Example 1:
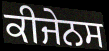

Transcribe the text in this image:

ਕੀਜੇਨਸ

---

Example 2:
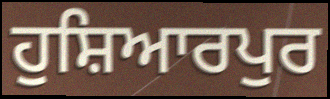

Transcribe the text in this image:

ਹੁਸ਼ਿਆਰਪੁਰ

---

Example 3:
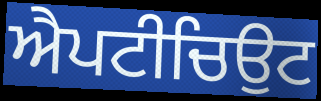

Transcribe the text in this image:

ਐਪਟੀਚਿਉਟ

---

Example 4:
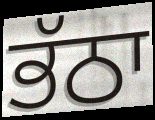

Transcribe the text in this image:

ਭੱਠਾ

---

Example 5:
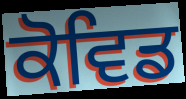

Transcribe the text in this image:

ਕੋਵਿਡ